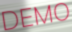
DEMO